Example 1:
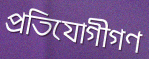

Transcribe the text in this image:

প্রতিযোগীগণ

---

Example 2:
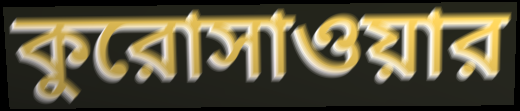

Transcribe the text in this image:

কুরোসাওয়ার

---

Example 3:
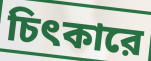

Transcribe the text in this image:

চিৎকারে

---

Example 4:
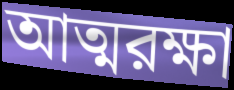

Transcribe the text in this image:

আত্মরক্ষা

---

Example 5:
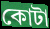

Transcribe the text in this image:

কোটা